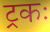
ट्रकः